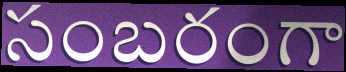
సంబరంగా